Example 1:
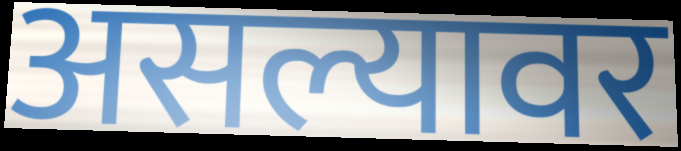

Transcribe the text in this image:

असल्यावर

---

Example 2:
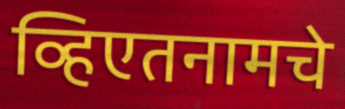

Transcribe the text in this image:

व्हिएतनामचे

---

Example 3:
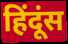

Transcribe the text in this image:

हिंदूंस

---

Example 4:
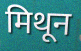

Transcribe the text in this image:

मिथून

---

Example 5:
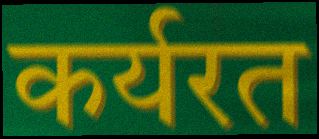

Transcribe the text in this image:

कर्यरत